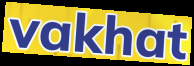
vakhat